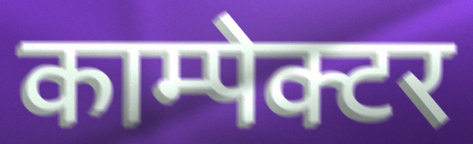
काम्पेक्टर